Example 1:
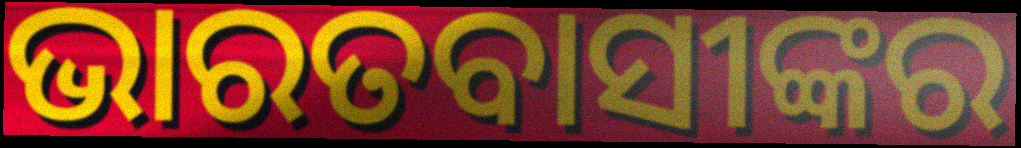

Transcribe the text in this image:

ଭାରତବାସୀଙ୍କର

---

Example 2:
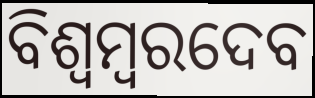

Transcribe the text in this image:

ବିଶ୍ୱମ୍ବରଦେବ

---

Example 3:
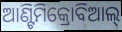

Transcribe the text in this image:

ଆଣ୍ଟିମିକ୍ରୋବିଆଲ୍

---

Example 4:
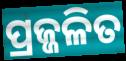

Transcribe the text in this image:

ପ୍ରଜ୍ଜଳିତ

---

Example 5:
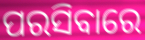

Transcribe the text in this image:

ପରସିବାରେ